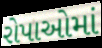
રોપાઓમાં